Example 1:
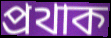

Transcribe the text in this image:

প্ৰথাক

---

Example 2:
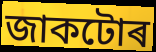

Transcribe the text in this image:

জাকটোৰ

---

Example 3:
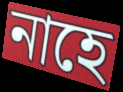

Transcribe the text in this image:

নাহে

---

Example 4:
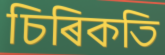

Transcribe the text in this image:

চিৰিকতি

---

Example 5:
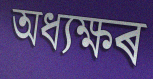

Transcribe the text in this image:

অধ্যক্ষৰ